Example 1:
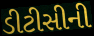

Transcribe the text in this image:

ડીટીસીની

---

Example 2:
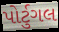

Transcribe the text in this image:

પોર્ટુગલ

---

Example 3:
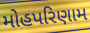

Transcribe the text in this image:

મોહપરિણામ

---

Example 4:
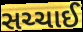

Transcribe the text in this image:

સચ્ચાઈ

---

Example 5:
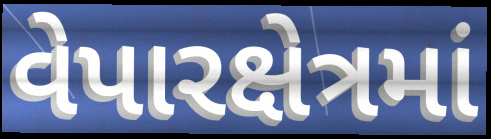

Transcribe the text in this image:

વેપારક્ષેત્રમાં